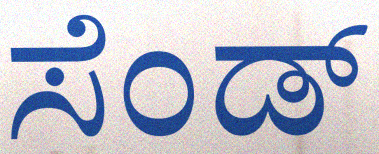
ಸೆಂಡ್